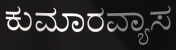
ಕುಮಾರವ್ಯಾಸ